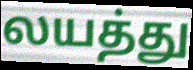
லயத்து